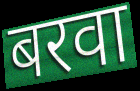
बरवा